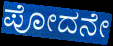
ಪೋದನೇ